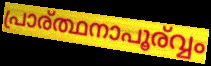
പ്രാര്ത്ഥനാപൂര്വ്വം